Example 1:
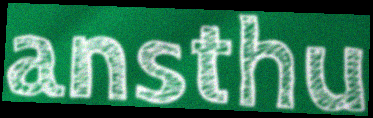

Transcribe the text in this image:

ansthu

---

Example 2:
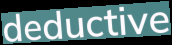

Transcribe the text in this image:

deductive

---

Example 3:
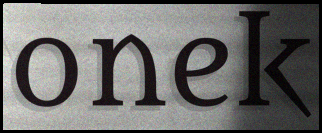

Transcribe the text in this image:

onek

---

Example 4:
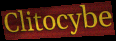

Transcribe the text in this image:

Clitocybe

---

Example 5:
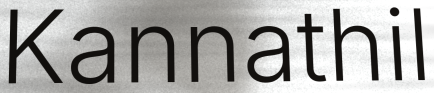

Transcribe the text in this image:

Kannathil